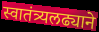
स्वातंत्र्यलढ्याने